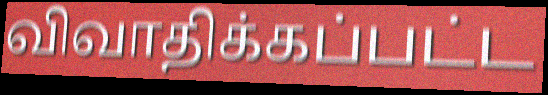
விவாதிக்கப்பட்ட